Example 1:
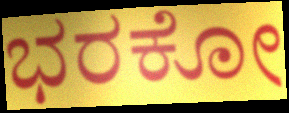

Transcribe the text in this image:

ಭರಕೋ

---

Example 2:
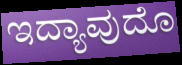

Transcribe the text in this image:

ಇದ್ಯಾವುದೊ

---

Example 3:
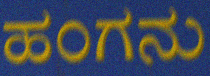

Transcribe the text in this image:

ಹಂಗನು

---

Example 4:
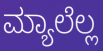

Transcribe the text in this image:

ಮ್ಯಾಲೆಲ್ಲ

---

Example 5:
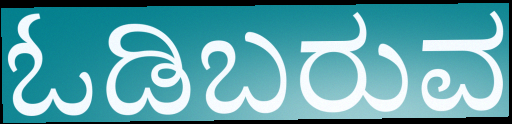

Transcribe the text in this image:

ಓಡಿಬರುವ